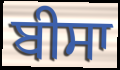
ਬੀਸਾ